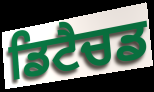
ਡਿਟੈਚਡ